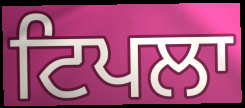
ਟਿਪਲਾ